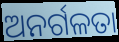
ଅନର୍ଗଳତା